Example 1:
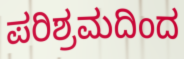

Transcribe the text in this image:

ಪರಿಶ್ರಮದಿಂದ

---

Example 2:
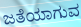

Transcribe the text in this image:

ಜತೆಯಾಗುವ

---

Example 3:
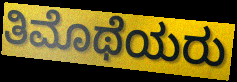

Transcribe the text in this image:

ತಿಮೊಥೆಯರು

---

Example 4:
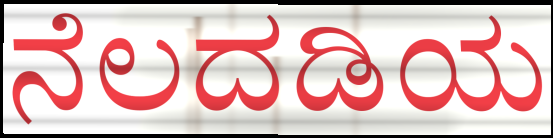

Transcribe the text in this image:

ನೆಲದಡಿಯ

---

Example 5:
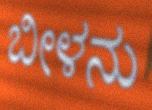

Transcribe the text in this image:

ಬೀಳನು